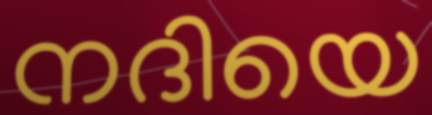
നദിയെ